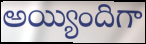
అయ్యిందిగా